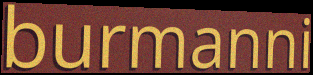
burmanni